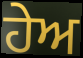
ਹੇਅ